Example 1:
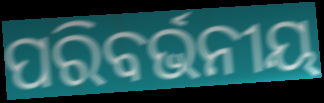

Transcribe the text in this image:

ପରିବର୍ଭନୀୟ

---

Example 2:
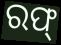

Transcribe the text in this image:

ରଫ୍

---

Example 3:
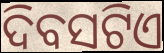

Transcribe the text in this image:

ଦିବସଟିଏ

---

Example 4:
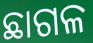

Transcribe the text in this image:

ଛାଗଳ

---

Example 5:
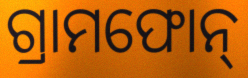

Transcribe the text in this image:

ଗ୍ରାମଫୋନ୍